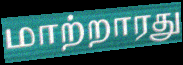
மாற்றாரது